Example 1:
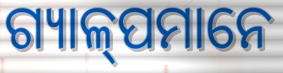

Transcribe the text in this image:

ଗ୍ୟାଳ୍‍ପମାନେ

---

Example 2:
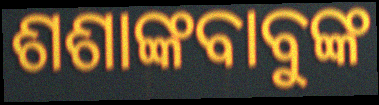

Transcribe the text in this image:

ଶଶାଙ୍କବାବୁଙ୍କ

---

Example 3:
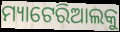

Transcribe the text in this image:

ମ୍ୟାଟେରିଆଲକୁ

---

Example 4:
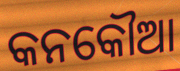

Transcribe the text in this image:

କନକୌଆ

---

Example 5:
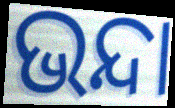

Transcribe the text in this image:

ଭନ୍ଦା